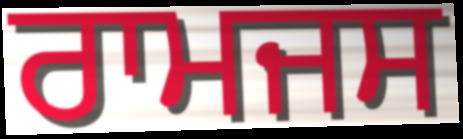
ਰਾਮਜਸ